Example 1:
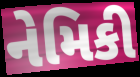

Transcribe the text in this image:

નેમિકી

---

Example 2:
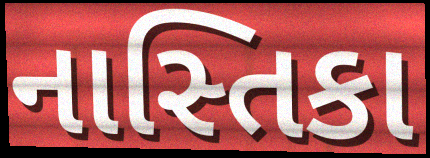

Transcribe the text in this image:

નાસ્તિકા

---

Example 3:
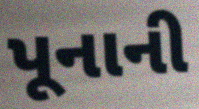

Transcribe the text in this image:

પૂનાની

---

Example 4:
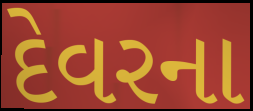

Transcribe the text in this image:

દેવરના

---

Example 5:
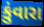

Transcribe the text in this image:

કુંવારા